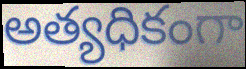
అత్యధికంగా